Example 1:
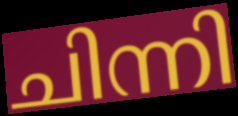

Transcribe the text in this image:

ചിന്നി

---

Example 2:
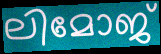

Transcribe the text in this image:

ലിമോജ്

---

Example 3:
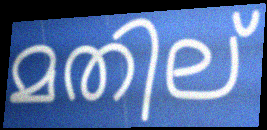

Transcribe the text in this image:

മതില്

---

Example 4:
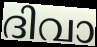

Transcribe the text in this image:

ദിവാ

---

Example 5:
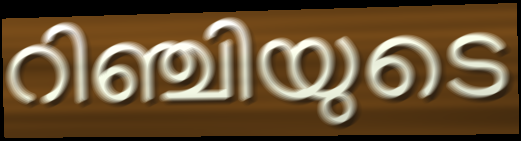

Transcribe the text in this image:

റിഞ്ചിയുടെ